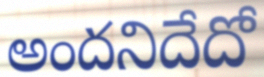
అందనిదేదో